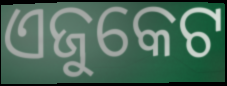
ଏଜୁକେଟ